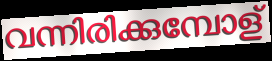
വന്നിരിക്കുമ്പോള്